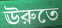
ঊরুতে